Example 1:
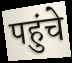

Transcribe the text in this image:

पहुंचे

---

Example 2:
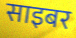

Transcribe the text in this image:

साइबर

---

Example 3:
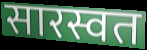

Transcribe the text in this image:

सारस्वत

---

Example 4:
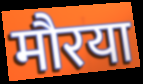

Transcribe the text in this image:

मौरया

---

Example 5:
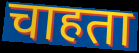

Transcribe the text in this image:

चाहता